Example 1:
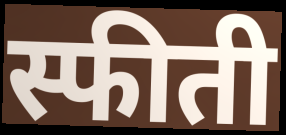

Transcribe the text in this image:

स्फीती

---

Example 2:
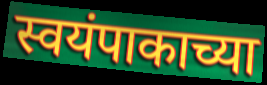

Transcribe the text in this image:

स्वयंपाकाच्या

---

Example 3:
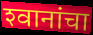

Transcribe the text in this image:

श्वानांचा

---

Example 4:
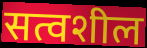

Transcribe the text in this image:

सत्वशील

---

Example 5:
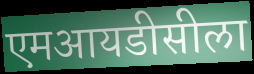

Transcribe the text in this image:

एमआयडीसीला